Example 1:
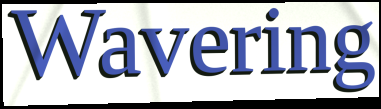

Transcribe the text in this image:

Wavering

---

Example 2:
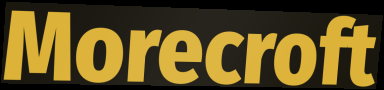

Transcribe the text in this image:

Morecroft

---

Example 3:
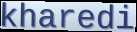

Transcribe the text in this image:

kharedi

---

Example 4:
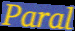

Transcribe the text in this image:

Paral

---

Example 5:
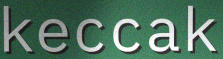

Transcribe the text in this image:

keccak